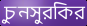
চুনসুরকির